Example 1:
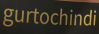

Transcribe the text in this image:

gurtochindi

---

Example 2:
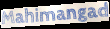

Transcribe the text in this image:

Mahimangad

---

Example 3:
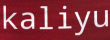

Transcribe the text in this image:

kaliyu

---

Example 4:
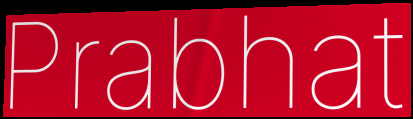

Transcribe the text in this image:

Prabhat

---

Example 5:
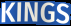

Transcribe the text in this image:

KINGS